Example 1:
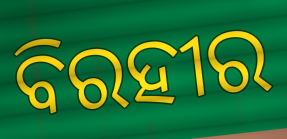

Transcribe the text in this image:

ବିରହୀର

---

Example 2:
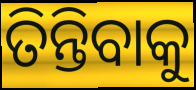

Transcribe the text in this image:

ତିନ୍ତିବାକୁ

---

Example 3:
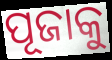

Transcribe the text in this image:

ପୂଜାକୁ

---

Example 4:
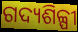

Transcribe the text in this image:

ଗଦ୍ୟଶିଳ୍ପୀ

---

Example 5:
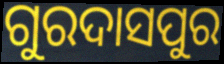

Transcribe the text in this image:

ଗୁରଦାସପୁର